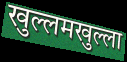
खुल्लमखुल्ला